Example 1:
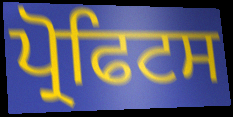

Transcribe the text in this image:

ਪ੍ਰੋਫਿਟਸ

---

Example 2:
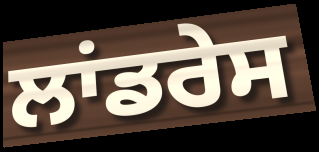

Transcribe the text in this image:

ਲਾਂਡਰੇਸ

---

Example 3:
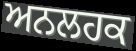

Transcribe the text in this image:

ਅਨਲਹਕ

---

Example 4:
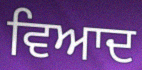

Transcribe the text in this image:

ਵਿਆਦ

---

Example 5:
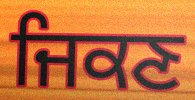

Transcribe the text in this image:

ਜਿਕਣ